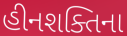
હીનશક્તિના